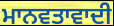
ਮਾਨਵਤਾਵਾਦੀ